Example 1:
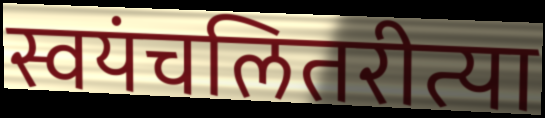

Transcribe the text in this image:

स्वयंचलितरीत्या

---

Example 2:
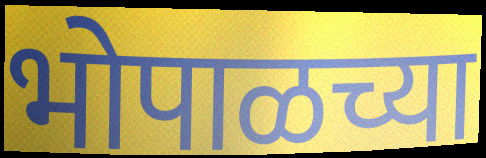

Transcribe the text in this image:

भोपाळच्या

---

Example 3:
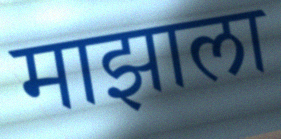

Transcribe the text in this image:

माझाला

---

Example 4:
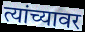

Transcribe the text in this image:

त्यांच्यावर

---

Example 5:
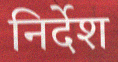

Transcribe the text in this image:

निर्देश